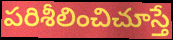
పరిశీలించిచూస్తే